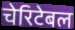
चेरिटेबल